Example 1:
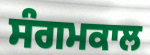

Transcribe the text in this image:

ਸੰਗਮਕਾਲ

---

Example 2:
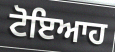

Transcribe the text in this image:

ਟੋਇਆਹ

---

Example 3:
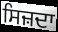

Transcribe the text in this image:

ਸਿਜ਼ਦਾ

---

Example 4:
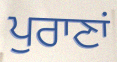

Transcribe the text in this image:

ਪੁਰਾਣਾਂ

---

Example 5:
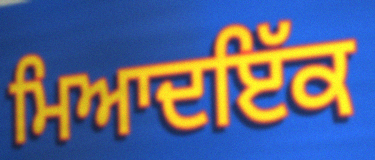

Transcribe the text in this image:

ਮਿਆਦਇੱਕ